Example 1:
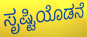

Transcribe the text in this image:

ಸೃಷ್ಟಿಯೊಡನೆ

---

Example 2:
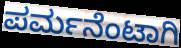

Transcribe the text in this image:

ಪರ್ಮನೆಂಟಾಗಿ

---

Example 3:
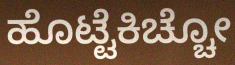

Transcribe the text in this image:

ಹೊಟ್ಟೆಕಿಚ್ಚೋ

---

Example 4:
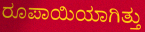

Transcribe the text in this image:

ರೂಪಾಯಿಯಾಗಿತ್ತು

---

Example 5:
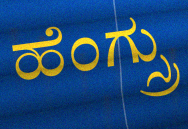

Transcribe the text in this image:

ಹೆಂಗ್ಸ್ರು